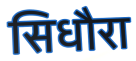
सिधौरा